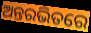
ଅନ୍ତରଭିତରେ